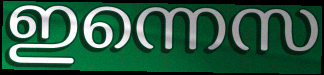
ഇന്നെസ